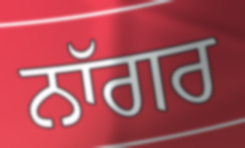
ਨਾੱਗਰ